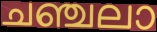
ചഞ്ചലാ